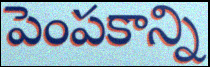
పెంపకాన్ని